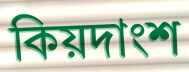
কিয়দাংশ